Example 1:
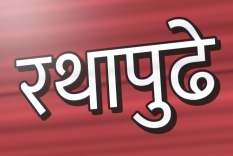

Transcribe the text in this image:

रथापुढे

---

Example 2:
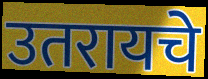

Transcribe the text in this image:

उतरायचे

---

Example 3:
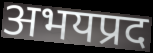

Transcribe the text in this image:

अभयप्रद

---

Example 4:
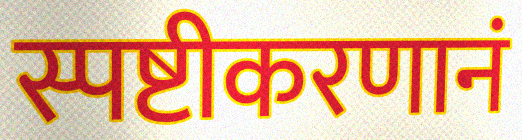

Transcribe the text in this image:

स्पष्टीकरणानं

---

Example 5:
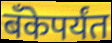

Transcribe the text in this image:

बॅंकेपर्यंत